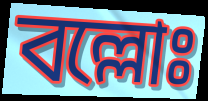
বল্লোঃ